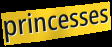
princesses